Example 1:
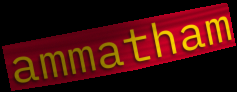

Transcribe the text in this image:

ammatham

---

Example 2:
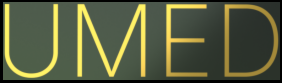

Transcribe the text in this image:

UMED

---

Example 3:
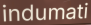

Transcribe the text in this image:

indumati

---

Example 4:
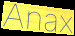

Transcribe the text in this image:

Anax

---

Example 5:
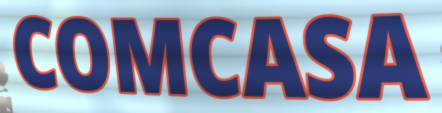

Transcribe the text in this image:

COMCASA